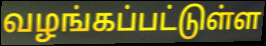
வழங்கப்பட்டுள்ள